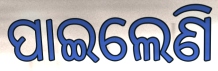
ପାଇଲେଣି